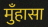
मुँहासा